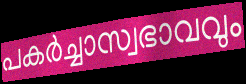
പകർച്ചാസ്വഭാവവും